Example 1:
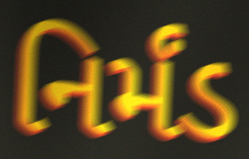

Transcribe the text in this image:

નિર્મંડ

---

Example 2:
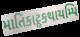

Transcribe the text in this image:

માતિકાટ્ઠકથાયમ્પિ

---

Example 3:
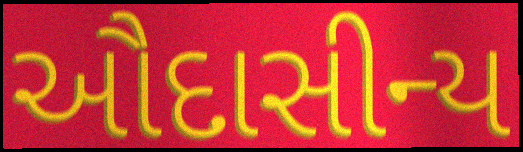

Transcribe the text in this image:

ઔદાસીન્ય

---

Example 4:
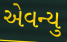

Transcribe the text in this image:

એવન્યુ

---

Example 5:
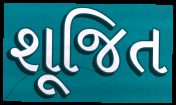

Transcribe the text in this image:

શૂજિત